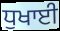
ਧੁਖਾਈ